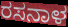
ರಸನಾಳ